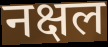
नक्षल